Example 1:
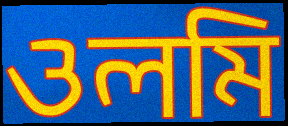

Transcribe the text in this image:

ওলমি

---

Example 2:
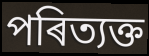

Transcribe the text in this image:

পৰিত্যক্ত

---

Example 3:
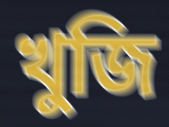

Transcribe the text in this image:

খুজি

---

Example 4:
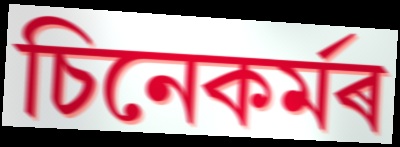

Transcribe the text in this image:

চিনেকৰ্মৰ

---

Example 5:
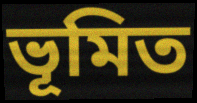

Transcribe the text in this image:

ভূমিত